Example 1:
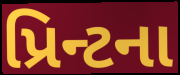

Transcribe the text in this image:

પ્રિન્ટના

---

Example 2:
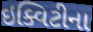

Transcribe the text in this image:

ઇક્વિટીના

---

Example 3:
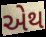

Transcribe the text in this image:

એથ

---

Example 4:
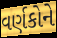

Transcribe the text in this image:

વર્ણકોને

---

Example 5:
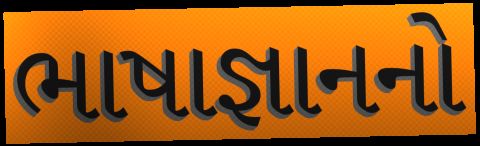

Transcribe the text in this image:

ભાષાજ્ઞાનનો